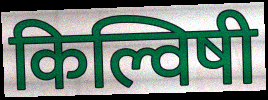
किल्विषी